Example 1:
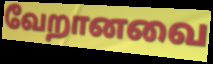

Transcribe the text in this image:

வேறானவை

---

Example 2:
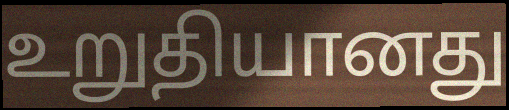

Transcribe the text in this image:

உறுதியானது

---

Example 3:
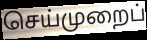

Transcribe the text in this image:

செய்முறைப்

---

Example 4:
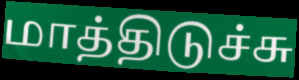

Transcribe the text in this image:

மாத்திடுச்சு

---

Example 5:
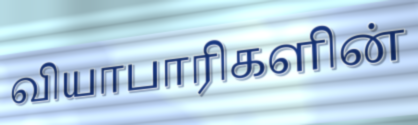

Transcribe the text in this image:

வியாபாரிகளின்